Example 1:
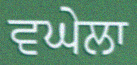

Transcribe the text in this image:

ਵਘੇਲਾ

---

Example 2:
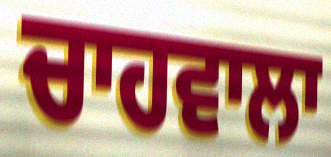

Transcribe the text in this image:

ਚਾਹਵਾਲਾ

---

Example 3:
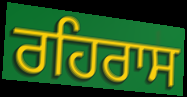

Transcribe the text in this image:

ਰਹਿਰਾਸ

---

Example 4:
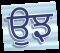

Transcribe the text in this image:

ਉਝ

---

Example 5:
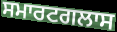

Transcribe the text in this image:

ਸਮਾਰਟਗਲਾਸ